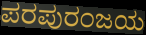
ಪರಪುರಂಜಯ